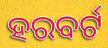
ହରବର୍ଟ